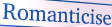
Romanticise